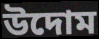
উদোম